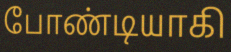
போண்டியாகி